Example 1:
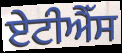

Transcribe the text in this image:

ਏਟੀਐੱਸ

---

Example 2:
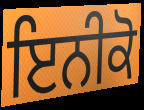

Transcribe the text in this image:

ਇਨੀਕੋ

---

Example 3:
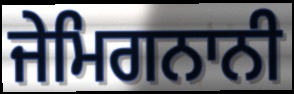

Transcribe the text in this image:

ਜੇਮਿਗਨਾਨੀ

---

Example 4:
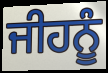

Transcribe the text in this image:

ਜੀਹਨੂੰ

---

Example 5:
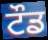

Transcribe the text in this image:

ਟੌਡ